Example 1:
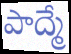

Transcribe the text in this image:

పాద్మే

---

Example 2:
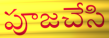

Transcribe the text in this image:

పూజచేసి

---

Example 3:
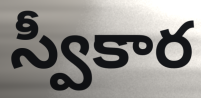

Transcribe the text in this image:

స్వీకార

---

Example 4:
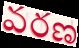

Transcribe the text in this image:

వరణ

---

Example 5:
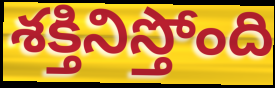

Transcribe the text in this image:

శక్తినిస్తోంది